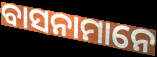
ବାସନାମାନେ